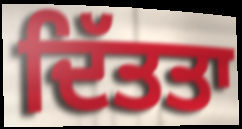
ਦਿੱਤਤਾ